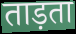
ताड़ता